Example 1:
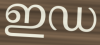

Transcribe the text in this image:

ഇഡ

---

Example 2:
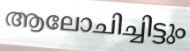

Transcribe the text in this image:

ആലോചിച്ചിട്ടും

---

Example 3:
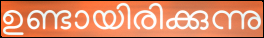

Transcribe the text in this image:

ഉണ്ടായിരിക്കുന്നു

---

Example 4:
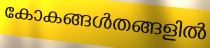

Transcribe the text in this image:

കോകങ്ങൾതങ്ങളിൽ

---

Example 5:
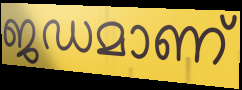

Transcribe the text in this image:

ജഡമാണ്